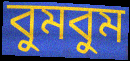
বুমবুম